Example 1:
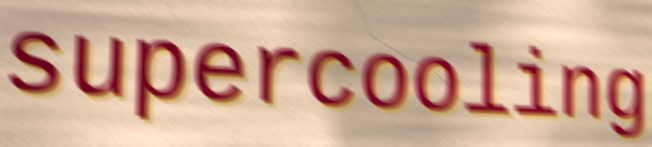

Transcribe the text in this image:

supercooling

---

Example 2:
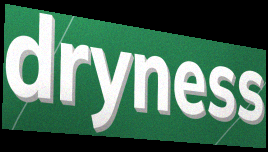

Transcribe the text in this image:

dryness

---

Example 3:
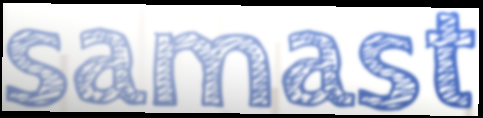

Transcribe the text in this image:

samast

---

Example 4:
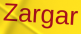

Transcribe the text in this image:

Zargar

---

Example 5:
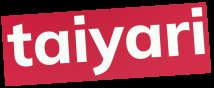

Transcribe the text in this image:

taiyari